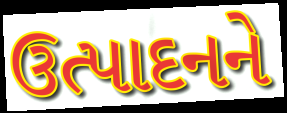
ઉત્પાદનને